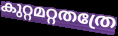
കുറ്റമറ്റതത്രേ